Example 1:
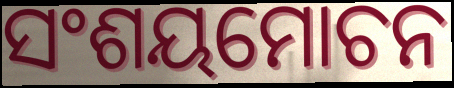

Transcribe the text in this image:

ସଂଶୟମୋଚନ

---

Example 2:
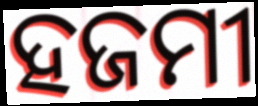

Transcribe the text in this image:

ହଜମୀ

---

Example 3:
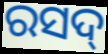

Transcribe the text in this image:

ରସଦ୍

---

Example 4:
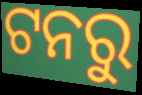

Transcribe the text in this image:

ଟନରୁ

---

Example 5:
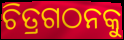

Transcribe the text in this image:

ଚିତ୍ରଗଠନକୁ